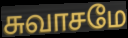
சுவாசமே